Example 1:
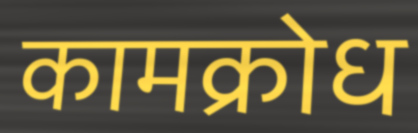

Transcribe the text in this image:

कामक्रोध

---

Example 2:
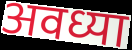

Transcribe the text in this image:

अवध्या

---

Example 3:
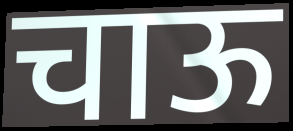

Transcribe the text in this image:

चाऊ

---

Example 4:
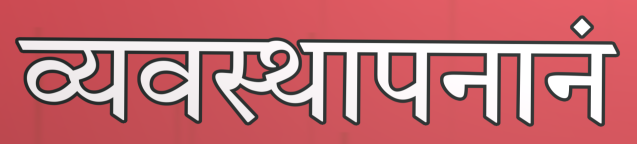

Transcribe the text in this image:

व्यवस्थापनानं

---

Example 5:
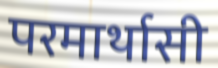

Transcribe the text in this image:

परमार्थासी